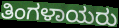
ತಿಂಗಳಾಯರು